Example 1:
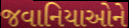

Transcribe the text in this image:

જવાનિયાઓને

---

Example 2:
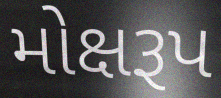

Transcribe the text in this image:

મોક્ષરૂપ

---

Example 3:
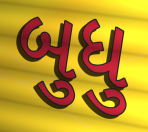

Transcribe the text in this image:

બુધુ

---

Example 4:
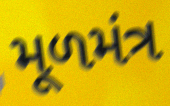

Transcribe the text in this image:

મૂળમંત્ર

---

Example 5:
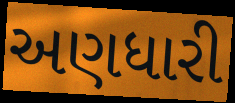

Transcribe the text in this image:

અણધારી